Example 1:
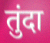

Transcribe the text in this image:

तुंदा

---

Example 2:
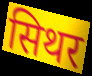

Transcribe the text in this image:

सिथर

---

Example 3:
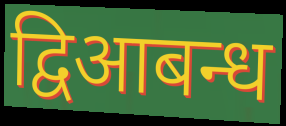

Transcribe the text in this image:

द्विआबन्ध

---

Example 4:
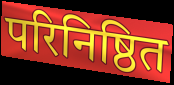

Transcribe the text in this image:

परिनिष्ठित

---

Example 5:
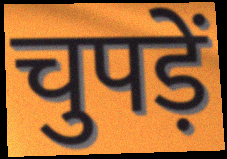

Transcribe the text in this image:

चुपड़ें